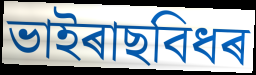
ভাইৰাছবিধৰ